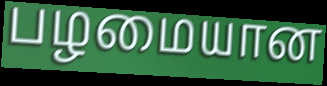
பழமையான